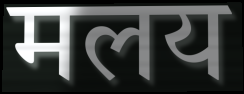
मलय